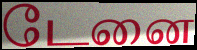
டேனை